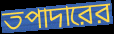
তপাদারের